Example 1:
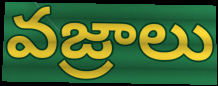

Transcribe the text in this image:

వజ్రాలు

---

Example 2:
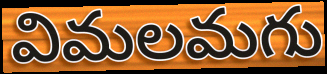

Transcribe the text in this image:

విమలమగు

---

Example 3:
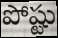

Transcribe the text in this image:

పోష్టు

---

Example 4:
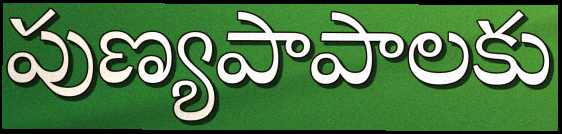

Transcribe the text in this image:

పుణ్యపాపాలకు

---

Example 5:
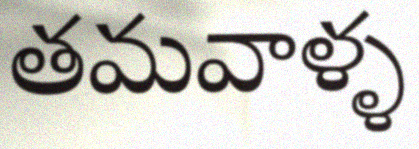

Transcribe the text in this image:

తమవాళ్ళ